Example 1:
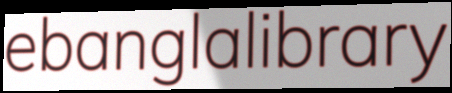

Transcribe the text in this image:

ebanglalibrary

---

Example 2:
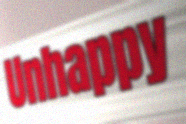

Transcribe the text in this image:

Unhappy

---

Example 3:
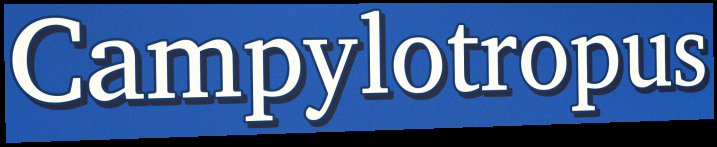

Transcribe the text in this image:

Campylotropus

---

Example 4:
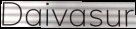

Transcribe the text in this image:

Daivasur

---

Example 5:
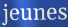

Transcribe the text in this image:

jeunes